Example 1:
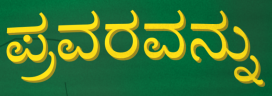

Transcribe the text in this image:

ಪ್ರವರವನ್ನು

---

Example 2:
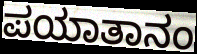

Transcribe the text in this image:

ಪಯಾತಾನಂ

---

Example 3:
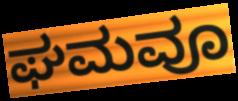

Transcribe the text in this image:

ಘಮವೂ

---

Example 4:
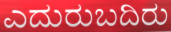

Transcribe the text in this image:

ಎದುರುಬದಿರು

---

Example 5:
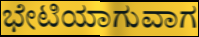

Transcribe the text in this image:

ಭೇಟಿಯಾಗುವಾಗ